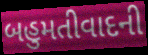
બહુમતીવાદની